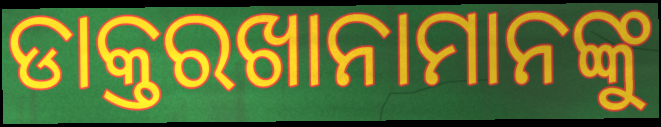
ଡାକ୍ତରଖାନାମାନଙ୍କୁ